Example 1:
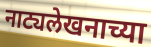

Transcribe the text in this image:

नाट्यलेखनाच्या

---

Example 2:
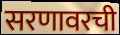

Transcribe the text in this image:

सरणावरची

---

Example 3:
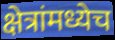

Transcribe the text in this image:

क्षेत्रांमध्येच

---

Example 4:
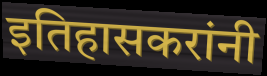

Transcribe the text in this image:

इतिहासकरांनी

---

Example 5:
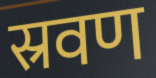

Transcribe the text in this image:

स्रवण